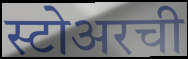
स्टोअरची